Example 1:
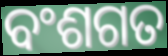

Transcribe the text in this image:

ବଂଶଗତ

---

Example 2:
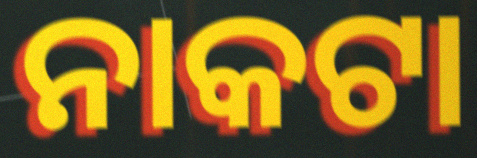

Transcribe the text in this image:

ନାକଟା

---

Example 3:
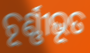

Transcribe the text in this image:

ଚୂର୍ଣ୍ଣୀଭୂତ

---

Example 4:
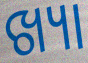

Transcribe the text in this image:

ଖ୍ୟା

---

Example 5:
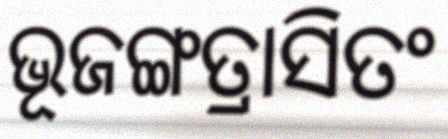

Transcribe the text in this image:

ଭୂଜଙ୍ଗତ୍ରାସିତଂ